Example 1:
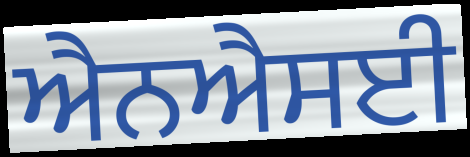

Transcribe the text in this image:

ਐਨਐਸਈ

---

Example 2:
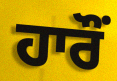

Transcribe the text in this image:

ਹਾਰੌਂ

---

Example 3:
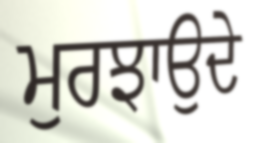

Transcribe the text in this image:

ਮੁਰਝਾਉਦੇ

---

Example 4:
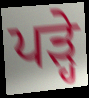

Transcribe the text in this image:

ਪਡ਼੍ਹੇ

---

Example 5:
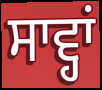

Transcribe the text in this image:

ਸਾਵ੍ਹਾਂ